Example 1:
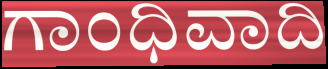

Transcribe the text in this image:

ಗಾಂಧಿವಾದಿ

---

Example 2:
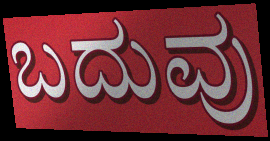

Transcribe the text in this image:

ಬದುವು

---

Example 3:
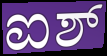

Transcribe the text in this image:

ಐಶ್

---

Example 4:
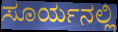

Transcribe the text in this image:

ಸೂರ್ಯನಲ್ಲಿ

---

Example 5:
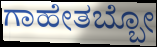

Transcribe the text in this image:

ಗಾಹೇತಬ್ಬೋ